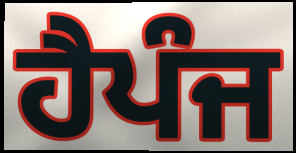
ਹੈਪੰਜ